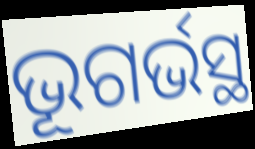
ଭୂଗର୍ଭସ୍ଥ